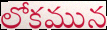
లోకమున